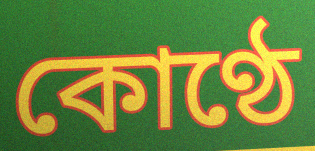
কোণ্ঠে